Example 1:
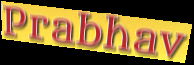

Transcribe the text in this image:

Prabhav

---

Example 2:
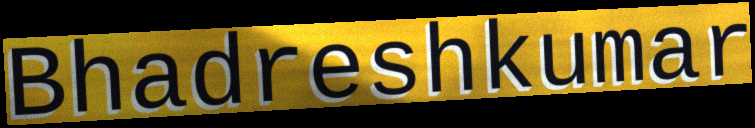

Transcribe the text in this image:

Bhadreshkumar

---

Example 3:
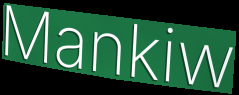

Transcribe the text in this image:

Mankiw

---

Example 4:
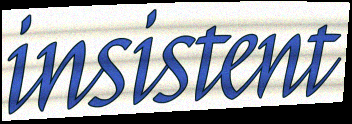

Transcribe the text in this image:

insistent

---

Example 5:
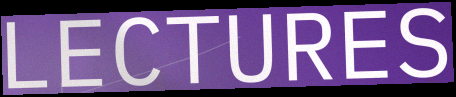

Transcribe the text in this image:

LECTURES